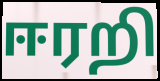
ஈரறி